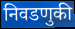
निवडणुकी